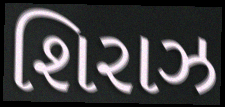
શિરાઝ